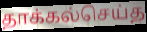
தாக்கல்செய்த